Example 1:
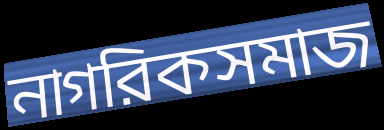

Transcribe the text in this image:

নাগরিকসমাজ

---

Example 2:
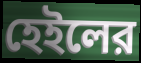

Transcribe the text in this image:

হেইলের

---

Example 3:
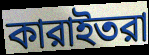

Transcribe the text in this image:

কারাইতরা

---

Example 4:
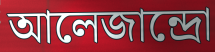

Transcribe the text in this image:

আলেজান্দ্রো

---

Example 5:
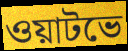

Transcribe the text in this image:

ওয়াটভে